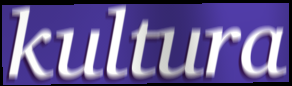
kultura